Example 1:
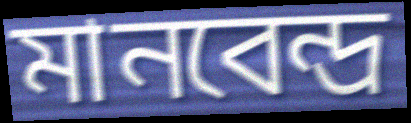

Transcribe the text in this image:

মানবেন্দ্র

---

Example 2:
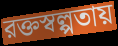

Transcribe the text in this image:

রক্তস্বল্পতায়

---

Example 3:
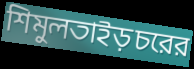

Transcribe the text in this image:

শিমুলতাইড়চরের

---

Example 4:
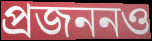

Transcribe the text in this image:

প্রজননও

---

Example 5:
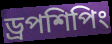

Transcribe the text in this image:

ড্রপশিপিং